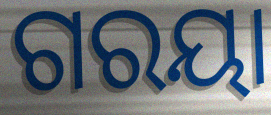
ଗରୟା